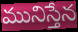
మునిస్తేన